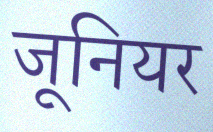
जूनियर